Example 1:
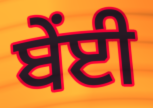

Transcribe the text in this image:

ਬੇਂਈ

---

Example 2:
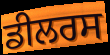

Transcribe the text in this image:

ਡੀਲਰਸ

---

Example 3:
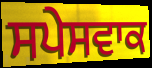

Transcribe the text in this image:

ਸਪੇਸਵਾਕ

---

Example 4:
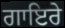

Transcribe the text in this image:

ਗਾਇਰੇ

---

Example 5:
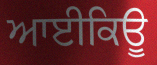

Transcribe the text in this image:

ਆਈਕਿਊ